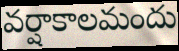
వర్షాకాలమందు